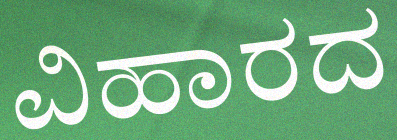
ವಿಹಾರದ